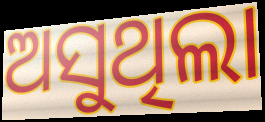
ଅସୁଥିଲା